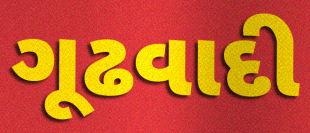
ગૂઢવાદી